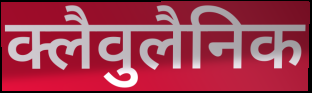
क्लैवुलैनिक